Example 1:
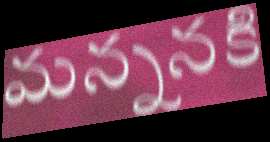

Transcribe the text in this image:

మన్ననకి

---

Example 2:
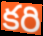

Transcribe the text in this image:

కరి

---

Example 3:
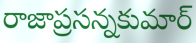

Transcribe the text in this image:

రాజాప్రసన్నకుమార్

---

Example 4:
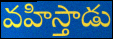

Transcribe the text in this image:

వహిస్తాడు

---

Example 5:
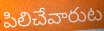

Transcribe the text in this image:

పిలిచేవారుట